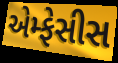
એમ્ફેસીસ